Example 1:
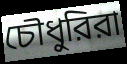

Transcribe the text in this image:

চৌধুরিরা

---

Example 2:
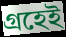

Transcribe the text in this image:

গ্রহেই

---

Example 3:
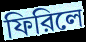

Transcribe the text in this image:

ফিরিলে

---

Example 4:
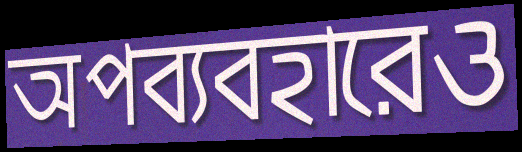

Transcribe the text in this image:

অপব্যবহারেও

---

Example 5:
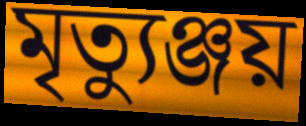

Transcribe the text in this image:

মৃত্যুঞ্জয়